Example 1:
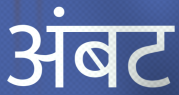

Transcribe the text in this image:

अंबट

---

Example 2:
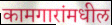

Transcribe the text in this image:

कामगारांमधील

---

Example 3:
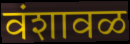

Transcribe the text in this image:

वंशावळ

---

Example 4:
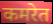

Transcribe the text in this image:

कमरेत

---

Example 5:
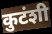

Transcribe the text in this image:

कुटंशी